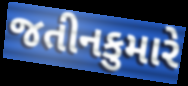
જતીનકુમારે